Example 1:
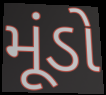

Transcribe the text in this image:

મૂંડો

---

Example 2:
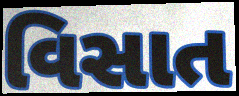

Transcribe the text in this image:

વિસાત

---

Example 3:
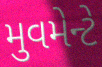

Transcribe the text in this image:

મુવમેન્ટે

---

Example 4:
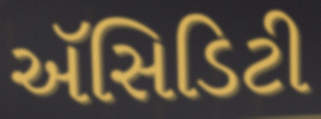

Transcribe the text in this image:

ઍસિડિટી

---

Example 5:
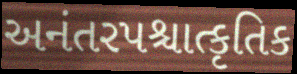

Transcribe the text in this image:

અનંતરપશ્ચાત્કૃતિક